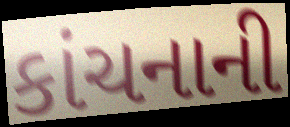
કાંચનાની